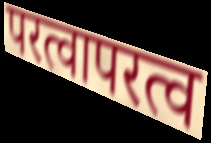
परत्वापरत्व